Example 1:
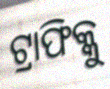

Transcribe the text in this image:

ଟ୍ରାଫିକ୍କୁ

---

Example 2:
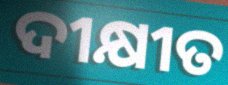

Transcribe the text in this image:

ଦୀକ୍ଷୀତ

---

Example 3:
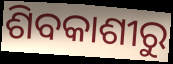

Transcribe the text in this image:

ଶିବକାଶୀରୁ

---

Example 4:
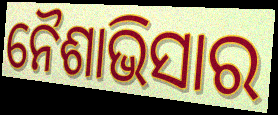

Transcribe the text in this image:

ନୈଶାଭିସାର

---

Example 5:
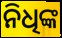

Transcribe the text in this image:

ନିଧିଙ୍କ